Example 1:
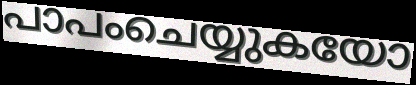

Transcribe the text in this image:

പാപംചെയ്യുകയോ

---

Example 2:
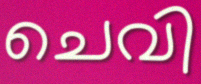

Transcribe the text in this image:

ചെവി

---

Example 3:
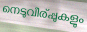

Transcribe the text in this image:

നെടുവീര്പ്പുകളും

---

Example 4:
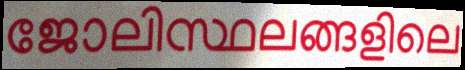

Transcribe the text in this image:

ജോലിസ്ഥലങ്ങളിലെ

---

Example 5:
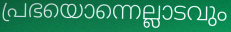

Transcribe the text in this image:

പ്രഭയൊന്നെല്ലാടവും